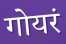
गोयरं